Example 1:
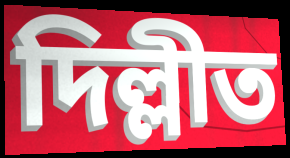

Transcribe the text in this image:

দিল্লীত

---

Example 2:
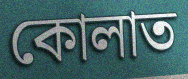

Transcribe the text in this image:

কোলাত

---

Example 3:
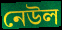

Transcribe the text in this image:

নেউল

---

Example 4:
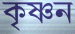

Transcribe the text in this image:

কৃষ্ণন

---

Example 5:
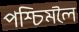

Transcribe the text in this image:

পশ্চিমলৈ